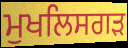
ਮੁਖਲਿਸਗੜ